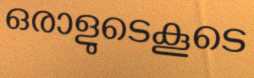
ഒരാളുടെകൂടെ